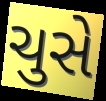
ચુસે